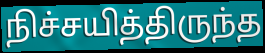
நிச்சயித்திருந்த